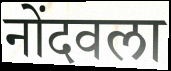
नोंदवला